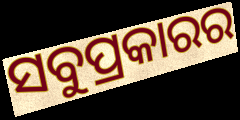
ସବୁପ୍ରକାରର